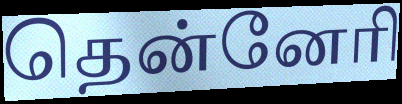
தென்னேரி